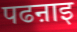
पढऩाइ